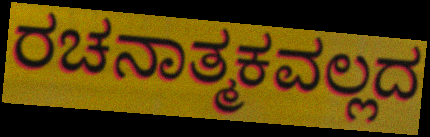
ರಚನಾತ್ಮಕವಲ್ಲದ